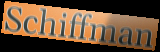
Schiffman